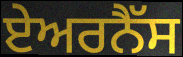
ਏਅਰਨੈੱਸ